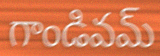
గాండివమ్